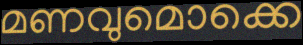
മണവുമൊക്കെ